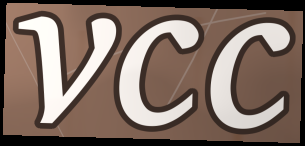
vcc